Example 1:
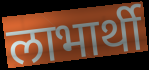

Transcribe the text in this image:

लाभार्थी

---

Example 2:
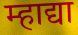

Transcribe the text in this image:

म्हाद्या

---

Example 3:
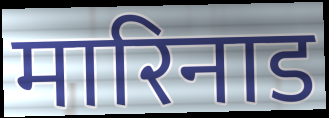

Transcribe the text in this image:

मारिनाड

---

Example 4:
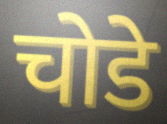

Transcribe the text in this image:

चोडे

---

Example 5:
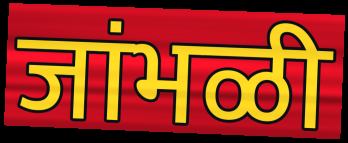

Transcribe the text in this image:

जांभळी